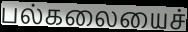
பல்கலையைச்